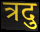
त्रदु